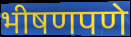
भीषणपणे